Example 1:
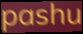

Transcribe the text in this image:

pashu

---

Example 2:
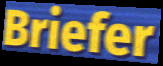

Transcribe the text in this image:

Briefer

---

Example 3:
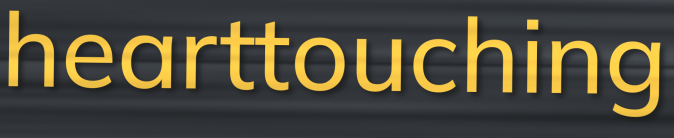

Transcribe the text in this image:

hearttouching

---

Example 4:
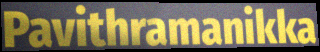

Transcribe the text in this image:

Pavithramanikka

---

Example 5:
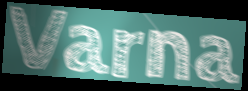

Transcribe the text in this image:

Varna